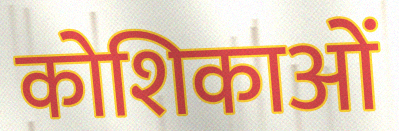
कोशिकाओं